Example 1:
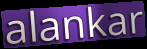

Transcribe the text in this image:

alankar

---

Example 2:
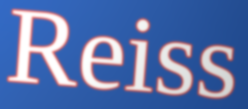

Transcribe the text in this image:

Reiss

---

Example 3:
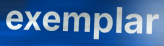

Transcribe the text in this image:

exemplar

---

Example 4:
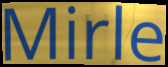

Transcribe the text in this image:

Mirle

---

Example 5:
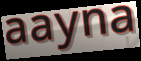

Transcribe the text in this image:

aayna